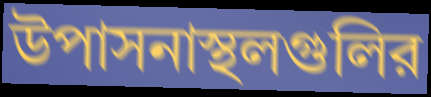
উপাসনাস্থলগুলির